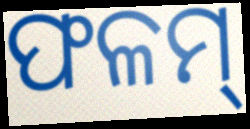
ଫଳମ୍